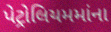
પેટ્રોલિયમમાંના